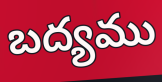
బద్యము